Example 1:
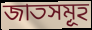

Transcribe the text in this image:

জাতসমূহ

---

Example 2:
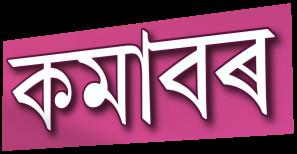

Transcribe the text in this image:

কমাবৰ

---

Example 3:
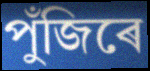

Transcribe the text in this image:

পুঁজিৰে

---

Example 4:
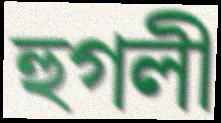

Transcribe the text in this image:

হুগলী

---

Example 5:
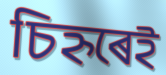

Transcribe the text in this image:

চিহ্নৰেই